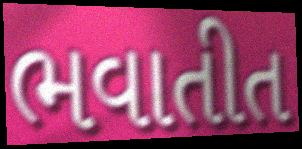
ભવાતીત